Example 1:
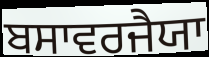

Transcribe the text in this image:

ਬਸਾਵਰਜੈਯਾ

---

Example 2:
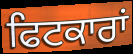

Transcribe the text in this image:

ਫਿਟਕਾਰਾਂ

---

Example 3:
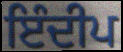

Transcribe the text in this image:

ਇੰਦੀਪ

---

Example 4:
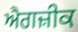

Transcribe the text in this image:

ਐਗਜ਼ੀਕ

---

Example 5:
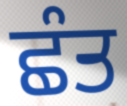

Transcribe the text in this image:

ਛੰਤ